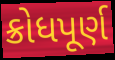
ક્રોધપૂર્ણ